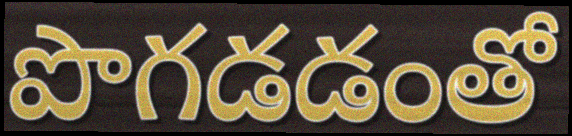
పొగడడంతో